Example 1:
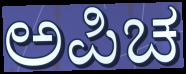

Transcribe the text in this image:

ಅಪಿಚ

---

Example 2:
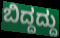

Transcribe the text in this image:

ಬಿದ್ದದ್ದು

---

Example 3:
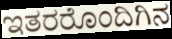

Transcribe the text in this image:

ಇತರರೊಂದಿಗಿನ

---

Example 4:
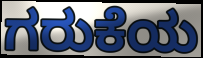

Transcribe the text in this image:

ಗರುಕೆಯ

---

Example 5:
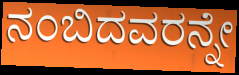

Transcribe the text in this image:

ನಂಬಿದವರನ್ನೇ